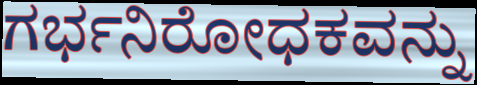
ಗರ್ಭನಿರೋಧಕವನ್ನು